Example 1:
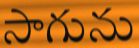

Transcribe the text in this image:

సాగును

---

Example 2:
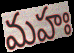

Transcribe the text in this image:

మహః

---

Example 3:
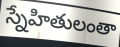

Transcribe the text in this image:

స్నేహితులంతా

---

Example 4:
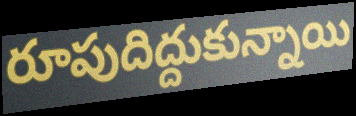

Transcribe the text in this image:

రూపుదిద్దుకున్నాయి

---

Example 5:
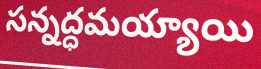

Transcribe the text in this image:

సన్నద్ధమయ్యాయి